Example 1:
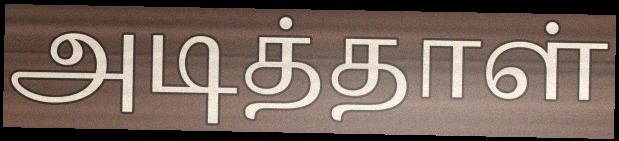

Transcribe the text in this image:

அடித்தாள்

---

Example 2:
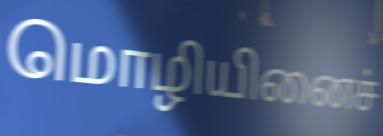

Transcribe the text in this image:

மொழியினைச்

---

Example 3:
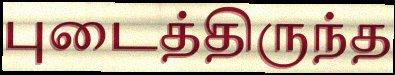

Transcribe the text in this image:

புடைத்திருந்த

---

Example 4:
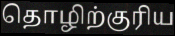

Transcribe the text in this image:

தொழிற்குரிய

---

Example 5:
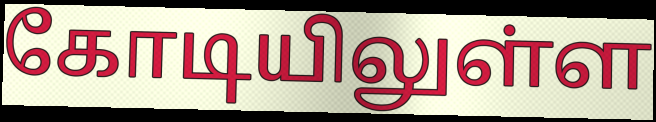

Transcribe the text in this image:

கோடியிலுள்ள